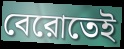
বেরোতেই